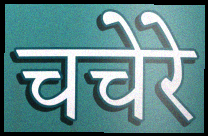
चचेरे